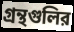
গ্রন্থগুলির